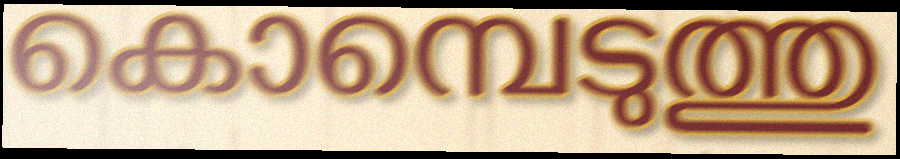
കൊമ്പെടുത്തു